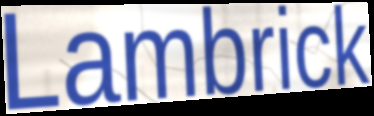
Lambrick